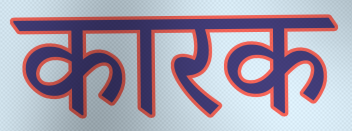
कारक